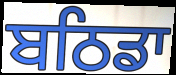
ਬਠਿਡਾ